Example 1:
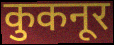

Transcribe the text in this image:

कुकनूर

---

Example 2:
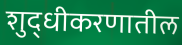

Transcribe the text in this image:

शुद्धीकरणातील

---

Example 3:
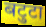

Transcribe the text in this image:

बटुटा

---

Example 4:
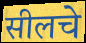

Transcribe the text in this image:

सीलचे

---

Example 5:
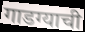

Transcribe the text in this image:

गाडग्याची